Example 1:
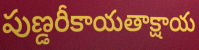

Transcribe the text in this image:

పుణ్డరీకాయతాక్షాయ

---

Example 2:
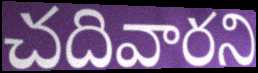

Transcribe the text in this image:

చదివారని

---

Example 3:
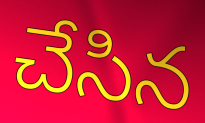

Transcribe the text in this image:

చేసిన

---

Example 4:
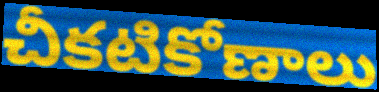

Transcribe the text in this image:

చీకటికోణాలు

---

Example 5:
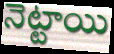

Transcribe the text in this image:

నెట్టాయి